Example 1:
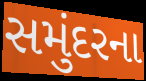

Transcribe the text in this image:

સમુંદરના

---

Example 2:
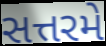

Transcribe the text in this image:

સત્તરમે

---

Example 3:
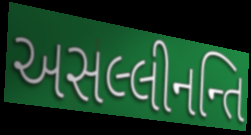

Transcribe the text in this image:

અસલ્લીનન્તિ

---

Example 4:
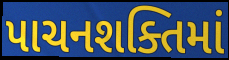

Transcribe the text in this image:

પાચનશક્તિમાં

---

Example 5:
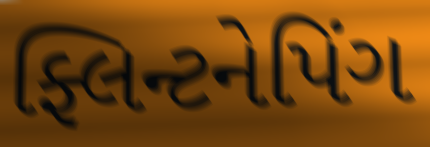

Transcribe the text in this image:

ફ્લિન્ટનેપિંગ